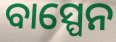
ବାସ୍ପେନ